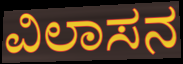
ವಿಲಾಸನ